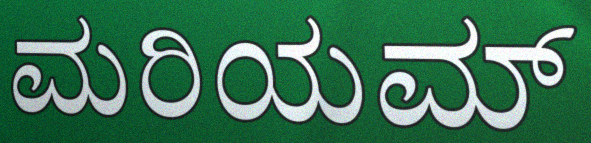
ಮರಿಯಮ್